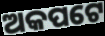
ଅକପଟେ